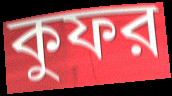
কুফর